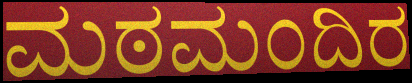
ಮಠಮಂದಿರ